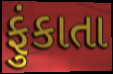
ફુંકાતા